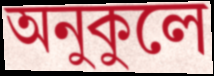
অনুকুলে